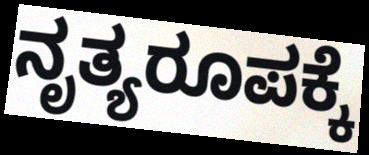
ನೃತ್ಯರೂಪಕ್ಕೆ